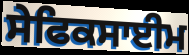
ਸੇਫਿਕਸਾਈਮ